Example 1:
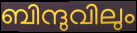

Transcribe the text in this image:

ബിന്ദുവിലും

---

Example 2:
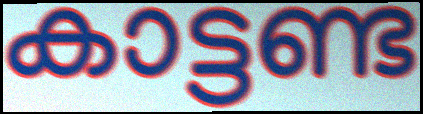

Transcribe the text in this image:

കാട്ടണ്ട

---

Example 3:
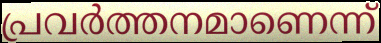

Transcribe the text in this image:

പ്രവർത്തനമാണെന്ന്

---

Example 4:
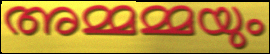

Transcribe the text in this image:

അമ്മമ്മയും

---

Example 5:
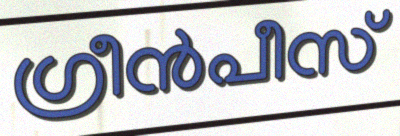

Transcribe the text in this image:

ഗ്രീൻപീസ്